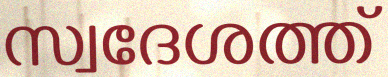
സ്വദേശത്ത്